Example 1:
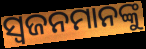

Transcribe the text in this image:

ସ୍ବଜନମାନଙ୍କୁ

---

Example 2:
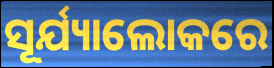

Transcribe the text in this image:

ସୂର୍ଯ୍ୟାଲୋକରେ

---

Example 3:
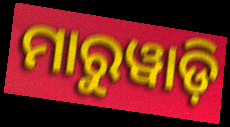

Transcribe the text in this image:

ମାରୁୱାଡ଼ି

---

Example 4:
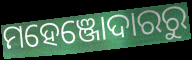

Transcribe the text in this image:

ମହେଞ୍ଜୋଦାରରୁ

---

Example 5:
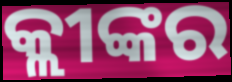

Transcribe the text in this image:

କ୍ଲୀଙ୍କର